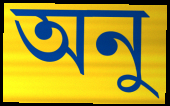
অনু